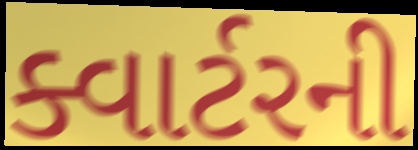
ક્વાર્ટરની